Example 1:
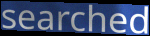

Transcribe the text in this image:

searched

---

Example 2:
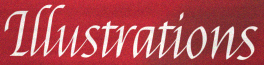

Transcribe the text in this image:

Illustrations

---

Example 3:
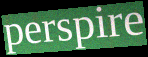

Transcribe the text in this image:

perspire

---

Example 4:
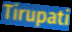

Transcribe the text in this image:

Tirupati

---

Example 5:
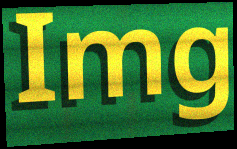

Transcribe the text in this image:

Img